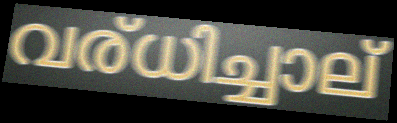
വര്ധിച്ചാല്